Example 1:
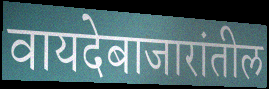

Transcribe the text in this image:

वायदेबाजारांतील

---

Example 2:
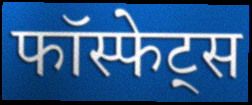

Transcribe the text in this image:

फॉस्फेट्स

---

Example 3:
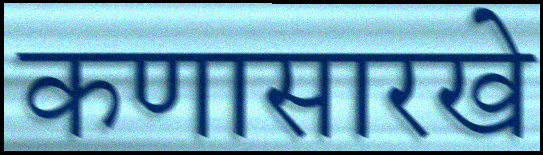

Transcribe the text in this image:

कणासारखे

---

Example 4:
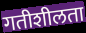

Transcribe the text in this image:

गतीशीलता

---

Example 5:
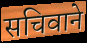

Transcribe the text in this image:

सचिवाने